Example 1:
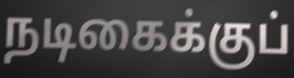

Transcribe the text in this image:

நடிகைக்குப்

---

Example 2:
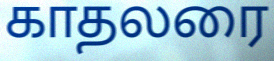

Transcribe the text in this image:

காதலரை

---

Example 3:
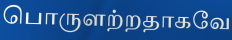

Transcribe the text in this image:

பொருளற்றதாகவே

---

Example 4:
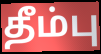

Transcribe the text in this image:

தீம்பு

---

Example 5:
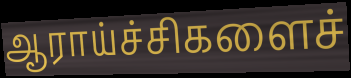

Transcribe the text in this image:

ஆராய்ச்சிகளைச்